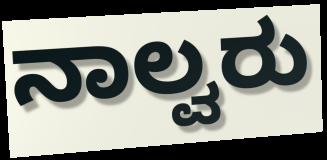
ನಾಲ್ವರು